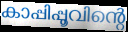
കാപ്പിപ്പൂവിന്റെ